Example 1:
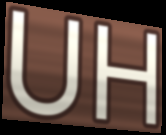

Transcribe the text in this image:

UH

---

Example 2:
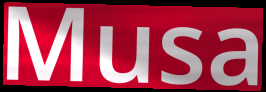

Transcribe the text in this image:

Musa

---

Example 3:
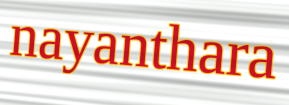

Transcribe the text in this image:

nayanthara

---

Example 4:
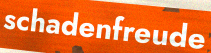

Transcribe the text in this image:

schadenfreude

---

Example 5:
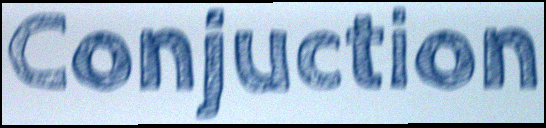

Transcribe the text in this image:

Conjuction